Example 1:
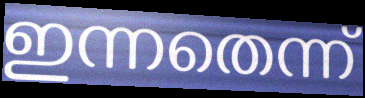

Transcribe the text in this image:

ഇന്നതെന്ന്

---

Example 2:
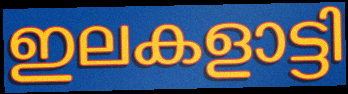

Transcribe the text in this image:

ഇലകളാട്ടി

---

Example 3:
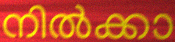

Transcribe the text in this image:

നിൽക്കാ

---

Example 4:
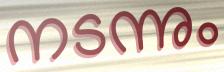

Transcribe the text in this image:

നടന്നും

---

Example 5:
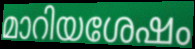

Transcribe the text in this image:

മാറിയശേഷം